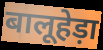
बालूहेड़ा